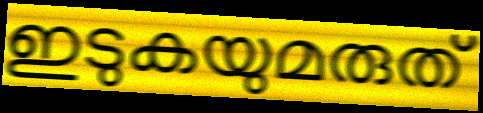
ഇടുകയുമരുത്